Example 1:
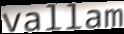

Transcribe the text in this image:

vallam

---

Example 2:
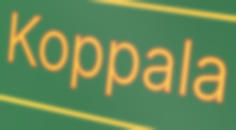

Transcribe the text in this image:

Koppala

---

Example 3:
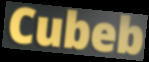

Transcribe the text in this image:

Cubeb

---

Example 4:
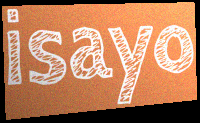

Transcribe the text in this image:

isayo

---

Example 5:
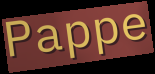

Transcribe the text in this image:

Pappe